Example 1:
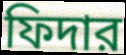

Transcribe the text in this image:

ফিদার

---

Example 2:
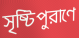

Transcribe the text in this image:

সৃষ্টিপুরাণে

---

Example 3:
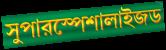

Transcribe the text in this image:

সুপারস্পেশালাইজড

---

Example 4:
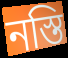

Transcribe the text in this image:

নস্তি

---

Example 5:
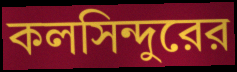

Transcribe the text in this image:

কলসিন্দুরের